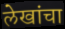
लेखांचा